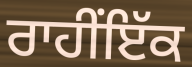
ਰਾਹੀਂਇੱਕ